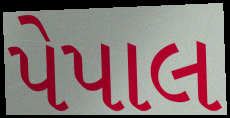
પેપાલ